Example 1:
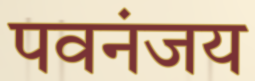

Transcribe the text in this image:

पवनंजय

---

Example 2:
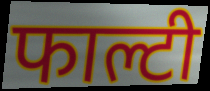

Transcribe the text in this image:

फाल्टी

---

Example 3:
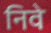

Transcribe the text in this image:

निवे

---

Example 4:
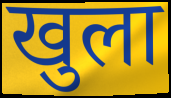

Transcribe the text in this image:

खुला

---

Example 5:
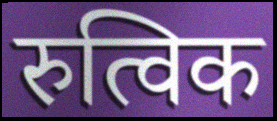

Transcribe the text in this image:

रुत्विक